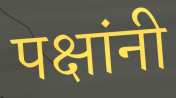
पक्षांनी